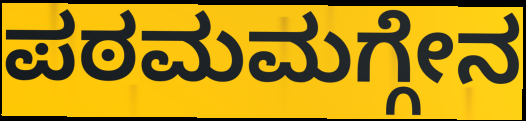
ಪಠಮಮಗ್ಗೇನ